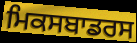
ਮਿਕਸਬਾਡਰਸ